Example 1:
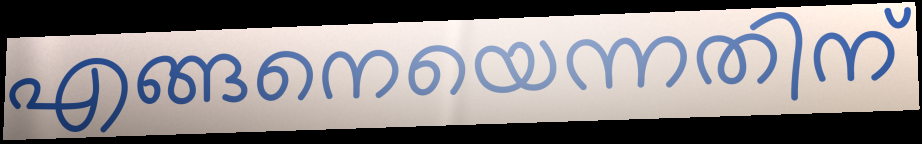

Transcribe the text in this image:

എങ്ങനെയെന്നതിന്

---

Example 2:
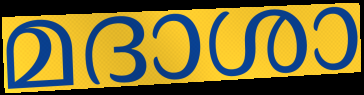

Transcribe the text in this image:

മദാശാ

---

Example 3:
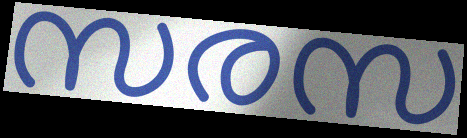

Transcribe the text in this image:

സരസ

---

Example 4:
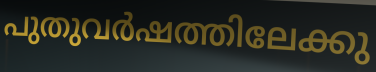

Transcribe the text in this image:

പുതുവർഷത്തിലേക്കു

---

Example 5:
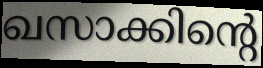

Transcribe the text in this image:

ഖസാക്കിന്റെ